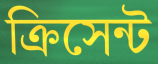
ক্রিসেন্ট